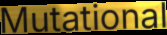
Mutational